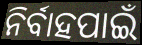
ନିର୍ବାହପାଇଁ